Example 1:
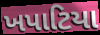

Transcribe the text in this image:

ખપાટિયા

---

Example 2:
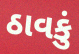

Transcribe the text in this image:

ઠાવકું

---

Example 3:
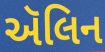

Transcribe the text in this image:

ઍલિન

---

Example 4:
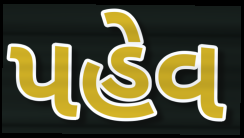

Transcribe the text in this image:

પહેવ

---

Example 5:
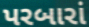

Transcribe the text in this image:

પરબારાં